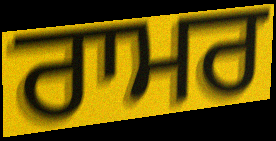
ਰਾਮਰ